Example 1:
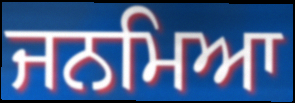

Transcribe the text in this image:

ਜਨਮਿਆ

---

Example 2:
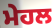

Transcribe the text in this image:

ਮੇਹਲ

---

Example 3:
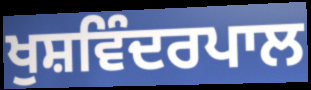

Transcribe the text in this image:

ਖੁਸ਼ਵਿੰਦਰਪਾਲ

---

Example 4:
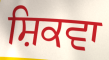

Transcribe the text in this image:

ਸ਼ਿਕਵਾ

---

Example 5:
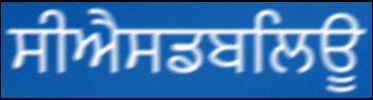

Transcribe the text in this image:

ਸੀਐਸਡਬਲਿਊ